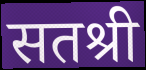
सतश्री